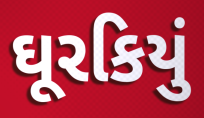
ઘૂરકિયું